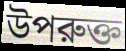
উপরুক্ত